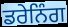
ਡਰੇਨਿੰਗ